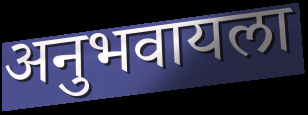
अनुभवायला